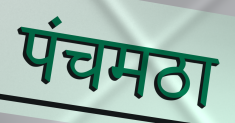
पंचमठा